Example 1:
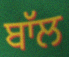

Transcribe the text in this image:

ਬਾੱਲ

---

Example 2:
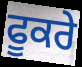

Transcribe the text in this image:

ਫੂਕਰੇ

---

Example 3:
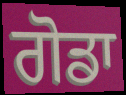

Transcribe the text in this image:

ਗੋਡਾ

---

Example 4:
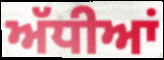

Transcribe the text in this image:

ਅੱਧੀਆਂ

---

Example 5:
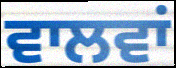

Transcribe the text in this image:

ਵਾਲਵਾਂ